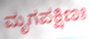
ಮೃಗಪಕ್ಷಿಣಃ